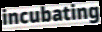
incubating